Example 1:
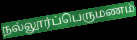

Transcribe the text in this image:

நல்லூர்ப்பெருமணம்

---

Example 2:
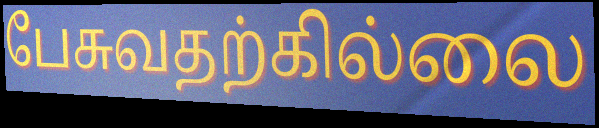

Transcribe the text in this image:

பேசுவதற்கில்லை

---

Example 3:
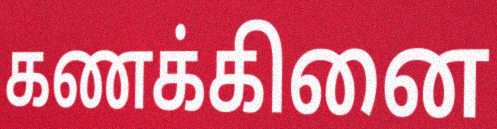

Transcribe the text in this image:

கணக்கினை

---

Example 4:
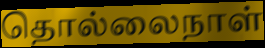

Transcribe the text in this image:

தொல்லைநாள்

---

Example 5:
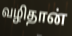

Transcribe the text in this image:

வழிதான்